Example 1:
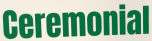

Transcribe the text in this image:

Ceremonial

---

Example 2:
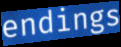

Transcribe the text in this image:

endings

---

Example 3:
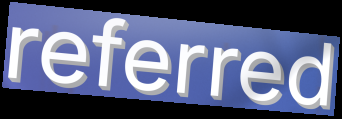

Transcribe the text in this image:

referred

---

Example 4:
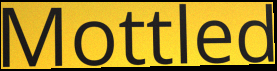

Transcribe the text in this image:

Mottled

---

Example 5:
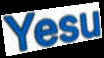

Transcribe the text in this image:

Yesu